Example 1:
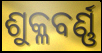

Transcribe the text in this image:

ଶୁକ୍ଳବର୍ଣ୍ଣ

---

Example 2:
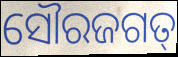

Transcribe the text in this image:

ସୌରଜଗତ୍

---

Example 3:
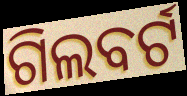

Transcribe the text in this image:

ଗିଲବର୍ଟ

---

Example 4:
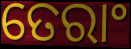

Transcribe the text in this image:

ତେରାଂ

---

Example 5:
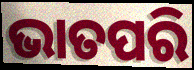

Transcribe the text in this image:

ଭାତପରି